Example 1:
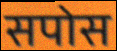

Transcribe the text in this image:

सपोस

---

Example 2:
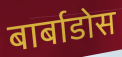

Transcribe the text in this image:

बार्बाडोस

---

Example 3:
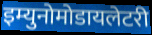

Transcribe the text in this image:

इम्युनोमोडायलेटरी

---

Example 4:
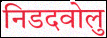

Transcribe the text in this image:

निडदवोलु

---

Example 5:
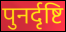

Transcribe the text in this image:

पुनर्दृष्टि